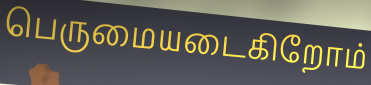
பெருமையடைகிறோம்